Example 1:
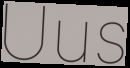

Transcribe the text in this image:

Uus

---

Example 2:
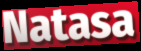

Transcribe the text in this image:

Natasa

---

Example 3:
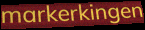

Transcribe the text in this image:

markerkingen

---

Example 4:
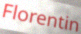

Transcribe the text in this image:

Florentin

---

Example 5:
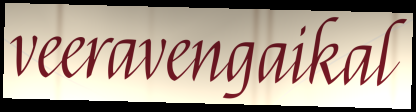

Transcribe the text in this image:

veeravengaikal